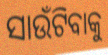
ସାଉଁଟିବାକୁ